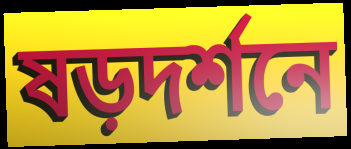
ষড়দর্শনে